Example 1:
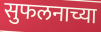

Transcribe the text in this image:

सुफलनाच्या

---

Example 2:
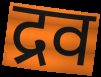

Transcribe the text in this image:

द्रव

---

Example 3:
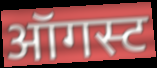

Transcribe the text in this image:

ऑगस्ट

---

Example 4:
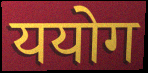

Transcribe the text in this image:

ययोग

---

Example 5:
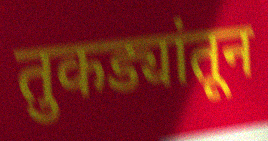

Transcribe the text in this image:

तुकड्यांतून